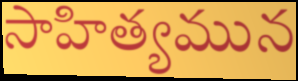
సాహిత్యమున